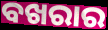
ବଖରାର